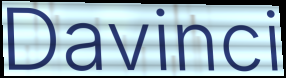
Davinci